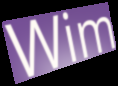
Wim